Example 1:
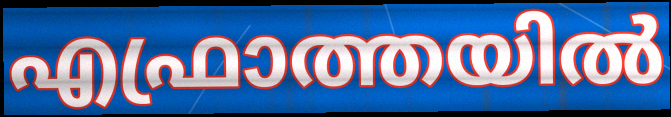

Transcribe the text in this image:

എഫ്രാത്തയിൽ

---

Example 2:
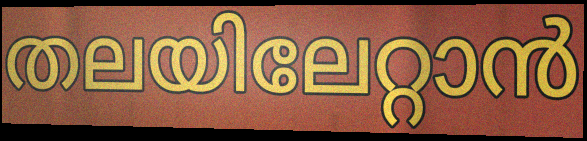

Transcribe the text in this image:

തലയിലേറ്റാൻ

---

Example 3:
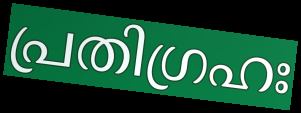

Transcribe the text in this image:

പ്രതിഗ്രഹഃ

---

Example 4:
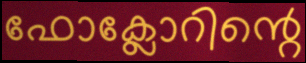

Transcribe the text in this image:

ഫോക്ലോറിന്റെ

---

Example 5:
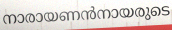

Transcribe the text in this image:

നാരായണൻനായരുടെ